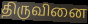
திருவினை